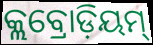
କ୍ଲବ୍ରୋଡ଼ିୟମ୍